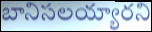
బానిసలయ్యారని